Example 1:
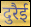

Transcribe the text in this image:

दुरैई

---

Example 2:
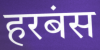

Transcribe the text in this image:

हरबंस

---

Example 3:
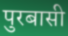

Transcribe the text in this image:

पुरबासी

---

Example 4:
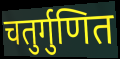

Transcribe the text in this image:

चतुर्गुणित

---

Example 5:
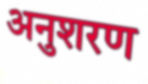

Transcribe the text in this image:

अनुशरण